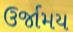
ઉર્જામય